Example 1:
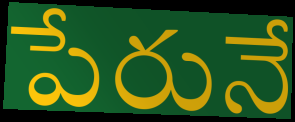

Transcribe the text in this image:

పేరునే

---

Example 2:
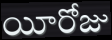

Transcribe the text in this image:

యీరోజు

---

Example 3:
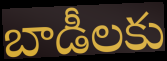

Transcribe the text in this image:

బాడీలకు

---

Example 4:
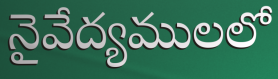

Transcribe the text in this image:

నైవేద్యములలో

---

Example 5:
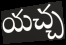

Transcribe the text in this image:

యచ్చ